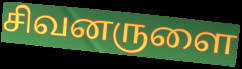
சிவனருளை